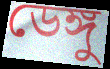
ডেঙ্গু